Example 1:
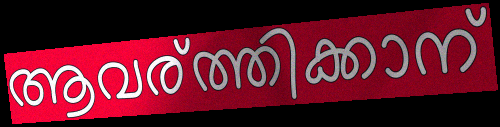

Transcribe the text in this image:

ആവര്ത്തിക്കാന്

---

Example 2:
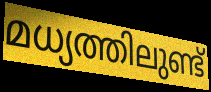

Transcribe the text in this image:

മധ്യത്തിലുണ്ട്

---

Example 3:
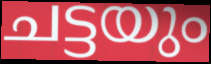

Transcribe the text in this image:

ചട്ടയും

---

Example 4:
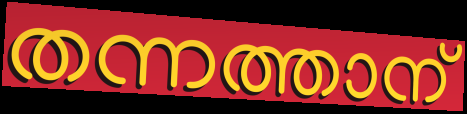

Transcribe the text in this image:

തന്നത്താന്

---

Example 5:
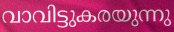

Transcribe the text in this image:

വാവിട്ടുകരയുന്നു